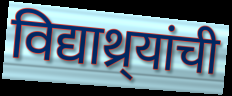
विद्याथ्र्यांची